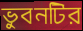
ভুবনটির